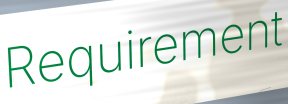
Requirement